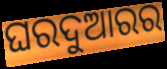
ଘରଦୁଆରର